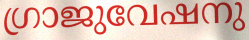
ഗ്രാജുവേഷനു